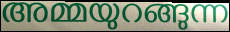
അമ്മയുറങ്ങുന്ന